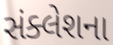
સંક્લેશના